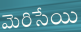
మెరిసేయి